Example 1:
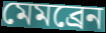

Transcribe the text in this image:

মেমব্রেন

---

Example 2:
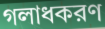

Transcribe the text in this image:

গলাধকরণ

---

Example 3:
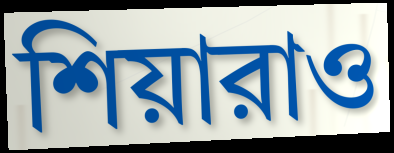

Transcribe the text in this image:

শিয়ারাও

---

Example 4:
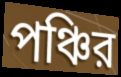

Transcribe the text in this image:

পঞ্চির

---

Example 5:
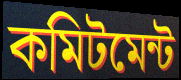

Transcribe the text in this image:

কমিটমেন্ট